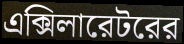
এক্সিলারেটরের